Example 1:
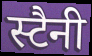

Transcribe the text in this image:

स्टैनी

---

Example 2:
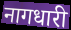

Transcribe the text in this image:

नागधारी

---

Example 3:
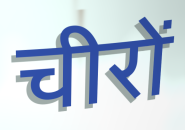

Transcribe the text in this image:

चीरों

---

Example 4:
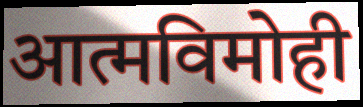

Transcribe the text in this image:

आत्मविमोही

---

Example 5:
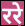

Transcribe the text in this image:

ररे